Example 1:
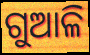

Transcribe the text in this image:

ଗୁଆଳି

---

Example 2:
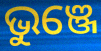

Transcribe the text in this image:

ଭୁଞ୍ଜେ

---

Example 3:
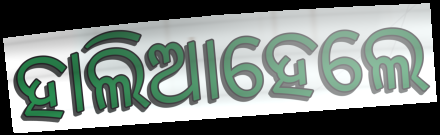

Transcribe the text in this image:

ହାଲିଆହେଲେ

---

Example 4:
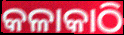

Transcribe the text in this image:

କଳାକାଠି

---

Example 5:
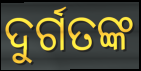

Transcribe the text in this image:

ଦୁର୍ଗତଙ୍କ